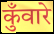
कुँवारे